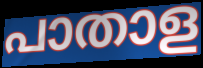
പാതാള